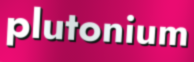
plutonium